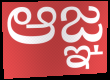
ఆజ్ఞ